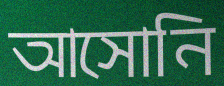
আসোনি